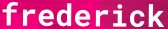
frederick